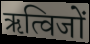
ऋत्विजों